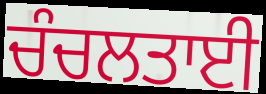
ਚੰਚਲਤਾਈ